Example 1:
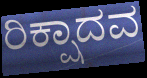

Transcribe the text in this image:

ರಿಕ್ಷಾದವ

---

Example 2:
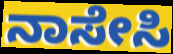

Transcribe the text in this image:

ನಾಸೇಸಿ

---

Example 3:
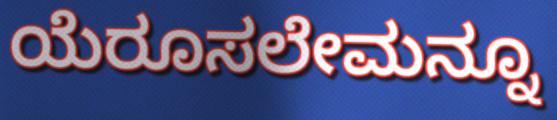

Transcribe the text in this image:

ಯೆರೂಸಲೇಮನ್ನೂ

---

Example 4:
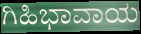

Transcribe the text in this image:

ಗಿಹಿಭಾವಾಯ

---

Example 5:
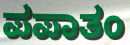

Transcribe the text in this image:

ಪಪಾತಂ